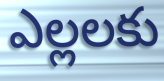
ఎల్లలకు